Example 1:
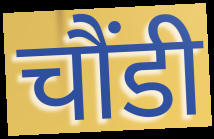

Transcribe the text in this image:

चौंडी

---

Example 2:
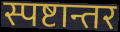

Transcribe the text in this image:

स्पष्टान्तर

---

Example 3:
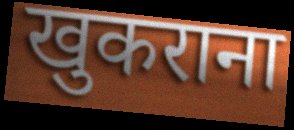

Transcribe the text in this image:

खुकराना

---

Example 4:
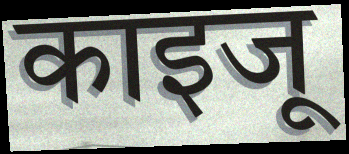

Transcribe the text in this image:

काइजू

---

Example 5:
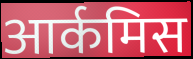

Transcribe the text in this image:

आर्कमिस